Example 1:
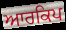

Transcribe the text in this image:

ਆਰਕਿਪ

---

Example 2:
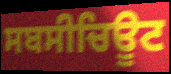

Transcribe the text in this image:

ਸਬਸੀਚਿਊਟ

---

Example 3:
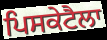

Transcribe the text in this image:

ਪਿਸਕੇਟੈਲਾ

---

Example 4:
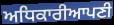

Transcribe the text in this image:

ਅਧਿਕਾਰੀਆਪਣੀ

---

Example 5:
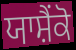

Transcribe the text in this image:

ਯਾਸ਼ੈਂਕੋ